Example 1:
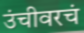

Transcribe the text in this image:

उंचीवरचं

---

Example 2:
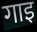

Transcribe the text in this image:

गाइ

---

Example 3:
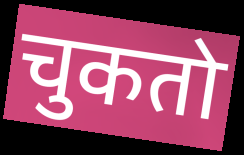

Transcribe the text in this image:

चुकतो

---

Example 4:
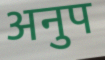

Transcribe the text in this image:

अनुप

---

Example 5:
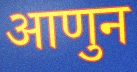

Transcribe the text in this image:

आणुन